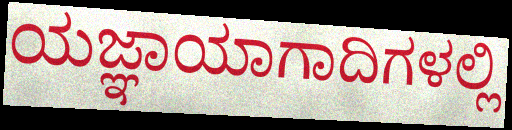
ಯಜ್ಞಾಯಾಗಾದಿಗಳಲ್ಲಿ